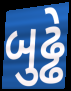
બુઢ્ઢે